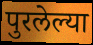
पुरलेल्या